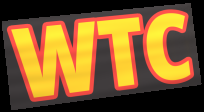
WTC